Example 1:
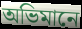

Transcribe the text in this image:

অভিমানে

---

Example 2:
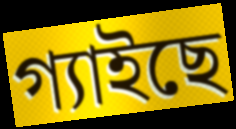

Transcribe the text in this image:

গ্যাইছে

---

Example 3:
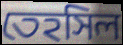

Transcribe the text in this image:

তেহসিল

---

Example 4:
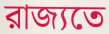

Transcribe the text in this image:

রাজ্যতে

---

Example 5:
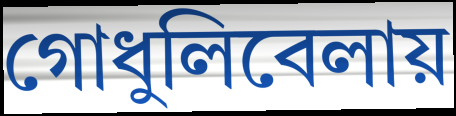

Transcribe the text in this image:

গোধুলিবেলায়